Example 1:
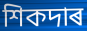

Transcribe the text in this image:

শিকদাৰ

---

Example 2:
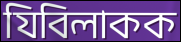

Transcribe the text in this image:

যিবিলাকক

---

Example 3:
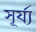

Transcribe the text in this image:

সূৰ্য্য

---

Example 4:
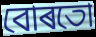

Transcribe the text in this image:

বোৰতো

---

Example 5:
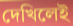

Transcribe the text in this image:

দেখিলেই